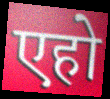
एहो